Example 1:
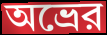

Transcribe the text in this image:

অভ্রের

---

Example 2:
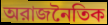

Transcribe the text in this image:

অরাজনৈতিক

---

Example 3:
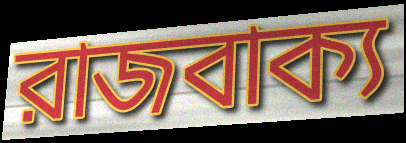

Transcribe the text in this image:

রাজবাক্য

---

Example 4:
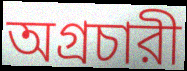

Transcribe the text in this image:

অগ্রচারী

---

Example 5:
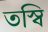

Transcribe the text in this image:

তস্বি